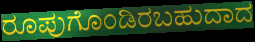
ರೂಪುಗೊಂಡಿರಬಹುದಾದ